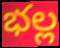
భల్ల